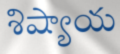
శిష్యాయ